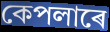
কেপলাৰে